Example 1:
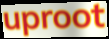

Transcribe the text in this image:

uproot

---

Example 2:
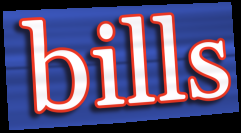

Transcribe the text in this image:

bills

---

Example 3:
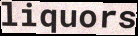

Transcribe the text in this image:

liquors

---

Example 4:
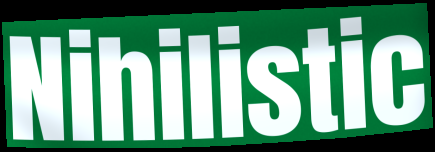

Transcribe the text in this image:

Nihilistic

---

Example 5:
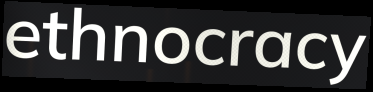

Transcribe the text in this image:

ethnocracy